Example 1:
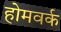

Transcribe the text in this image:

होमवर्क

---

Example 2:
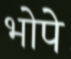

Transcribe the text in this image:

भोपे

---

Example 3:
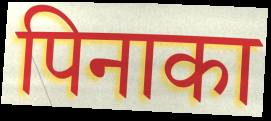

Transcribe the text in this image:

पिनाका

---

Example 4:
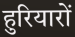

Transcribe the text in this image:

हुरियारों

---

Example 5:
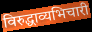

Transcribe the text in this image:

विरुद्धाव्यभिचारी